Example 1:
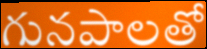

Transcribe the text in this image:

గునపాలతో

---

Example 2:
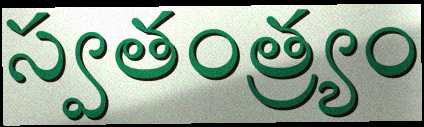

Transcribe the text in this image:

స్వతంత్ర్యం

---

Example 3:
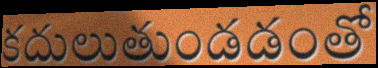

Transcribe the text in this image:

కదులుతుండడంతో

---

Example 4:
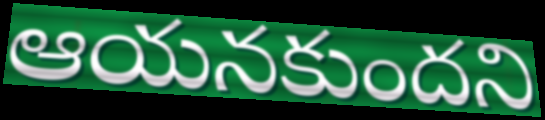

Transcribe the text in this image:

ఆయనకుందని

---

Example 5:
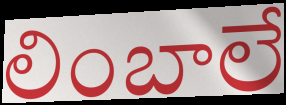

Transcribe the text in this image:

లింబాలే